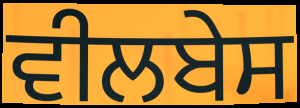
ਵੀਲਬੇਸ